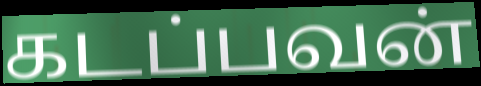
கடப்பவன்